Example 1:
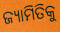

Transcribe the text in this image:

ଜ୍ୟାମିତିକୁ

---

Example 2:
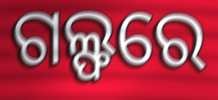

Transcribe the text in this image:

ଗଲ୍ଫରେ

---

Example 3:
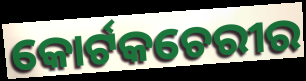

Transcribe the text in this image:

କୋର୍ଟକଚେରୀର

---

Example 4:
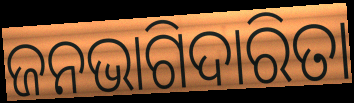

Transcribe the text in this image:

ଜନଭାଗିଦାରିତା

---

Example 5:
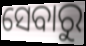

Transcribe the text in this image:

ସେବାରୁ